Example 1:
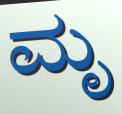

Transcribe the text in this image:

ಮೃ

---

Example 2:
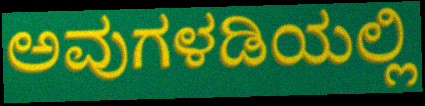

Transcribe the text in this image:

ಅವುಗಳಡಿಯಲ್ಲಿ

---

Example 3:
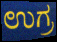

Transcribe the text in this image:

ಉಗ್ರ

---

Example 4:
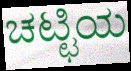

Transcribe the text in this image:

ಚಟ್ಟಿಯ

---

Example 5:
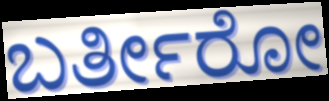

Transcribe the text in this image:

ಬರ್ತೀರೋ